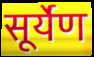
सूर्ये॑ण